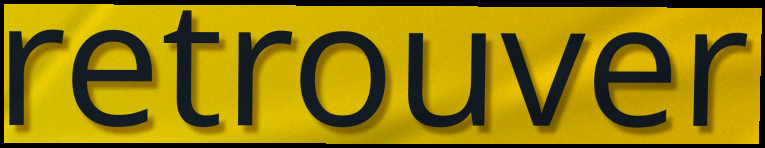
retrouver